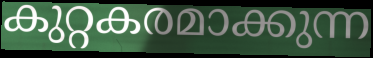
കുറ്റകരമാക്കുന്ന